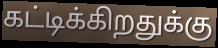
கட்டிக்கிறதுக்கு